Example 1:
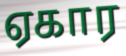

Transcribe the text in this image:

ஏகார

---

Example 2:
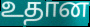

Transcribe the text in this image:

உதான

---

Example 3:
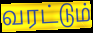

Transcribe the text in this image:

வரட்டும்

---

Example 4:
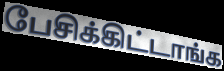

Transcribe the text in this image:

பேசிக்கிட்டாங்க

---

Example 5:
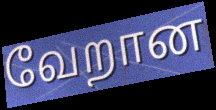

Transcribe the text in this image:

வேறான